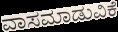
ವಾಸಮಾಡುವಿಕೆ